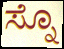
ಸ್ನೊ